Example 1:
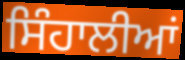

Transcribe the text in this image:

ਸਿੰਹਾਲੀਆਂ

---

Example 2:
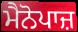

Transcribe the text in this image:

ਮੈਨੋਪਾਜ਼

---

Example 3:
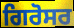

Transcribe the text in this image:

ਗਿਰੋਸਰ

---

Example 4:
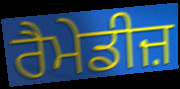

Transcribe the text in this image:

ਰੈਮੇਡੀਜ਼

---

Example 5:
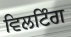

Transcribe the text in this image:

ਵਿਲਟਿੰਗ